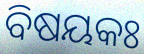
ବିଷୟକଃ